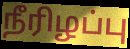
நீரிழப்பு